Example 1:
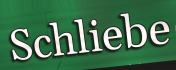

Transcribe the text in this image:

Schliebe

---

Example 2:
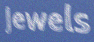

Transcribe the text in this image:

Jewels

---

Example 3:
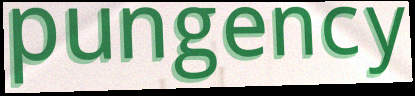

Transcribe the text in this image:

pungency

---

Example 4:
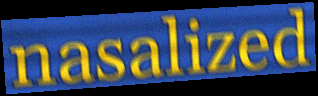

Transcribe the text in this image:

nasalized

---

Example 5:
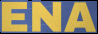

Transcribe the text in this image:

ENA